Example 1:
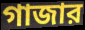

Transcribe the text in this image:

গাজার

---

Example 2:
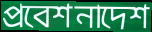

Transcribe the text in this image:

প্রবেশনাদেশ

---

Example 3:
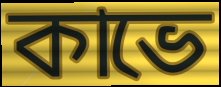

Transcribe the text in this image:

কাভে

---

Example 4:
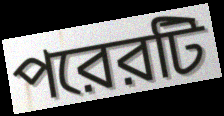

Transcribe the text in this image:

পরেরটি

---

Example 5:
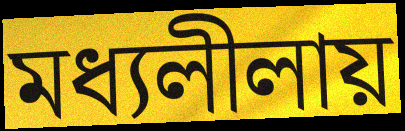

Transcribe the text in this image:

মধ্যলীলায়